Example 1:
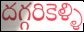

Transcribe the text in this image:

దగ్గరికెళ్ళి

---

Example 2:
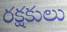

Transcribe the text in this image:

రక్షకులు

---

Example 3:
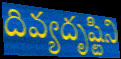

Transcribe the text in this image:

దివ్యదృష్టిని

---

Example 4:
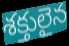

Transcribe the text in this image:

శక్తులైన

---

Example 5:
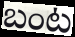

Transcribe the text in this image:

బంట